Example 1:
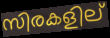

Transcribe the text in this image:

സിരകളില്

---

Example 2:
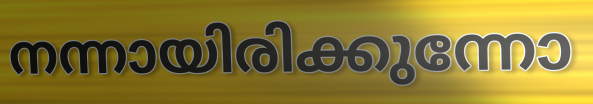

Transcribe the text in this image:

നന്നായിരിക്കുന്നോ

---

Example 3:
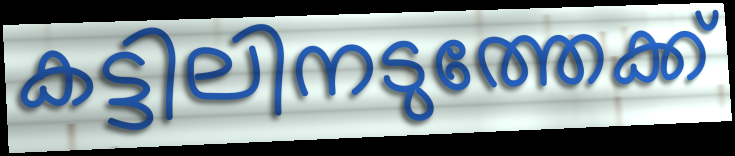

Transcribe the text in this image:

കട്ടിലിനടുത്തേക്ക്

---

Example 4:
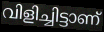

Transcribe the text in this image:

വിളിച്ചിട്ടാണ്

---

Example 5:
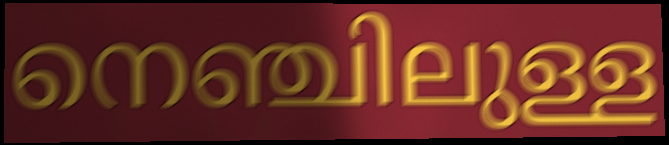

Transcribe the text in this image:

നെഞ്ചിലുള്ള